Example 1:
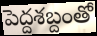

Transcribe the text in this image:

పెద్దశబ్దంతో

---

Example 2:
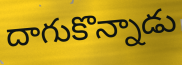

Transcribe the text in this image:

దాగుకొన్నాడు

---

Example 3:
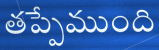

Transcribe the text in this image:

తప్పేముంది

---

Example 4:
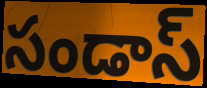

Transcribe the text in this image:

సండాస్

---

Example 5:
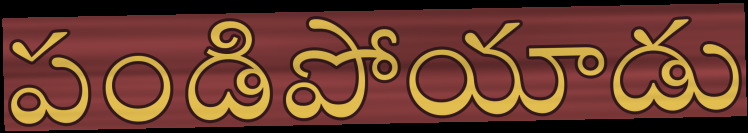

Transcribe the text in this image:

పండిపోయాడు